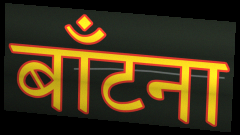
बाँटना